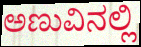
ಅಣುವಿನಲ್ಲಿ